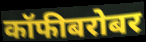
कॉफीबरोबर